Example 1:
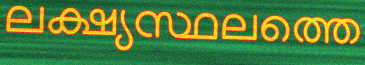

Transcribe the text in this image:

ലക്ഷ്യസ്ഥലത്തെ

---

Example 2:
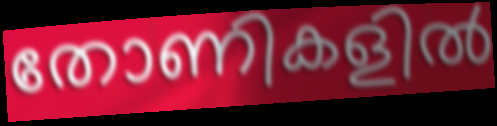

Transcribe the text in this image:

തോണികളിൽ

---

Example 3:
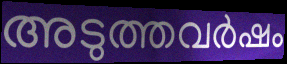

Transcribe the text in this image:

അടുത്തവർഷം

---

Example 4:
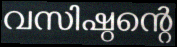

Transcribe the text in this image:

വസിഷ്ഠന്റെ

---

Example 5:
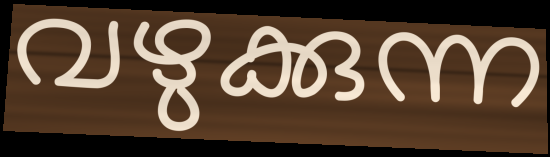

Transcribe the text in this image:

വഴുക്കുന്ന